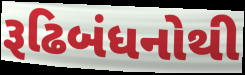
રૂઢિબંધનોથી